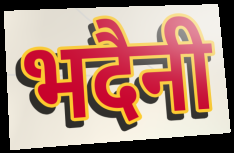
भदैनी